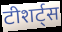
टीशर्ट्स